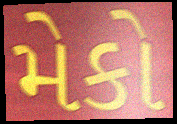
મેકો